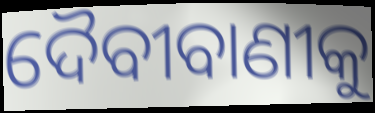
ଦୈବୀବାଣୀକୁ